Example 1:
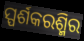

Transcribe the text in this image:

ସ୍ପର୍ଶକରଶ୍ମିର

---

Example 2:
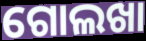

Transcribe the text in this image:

ଗୋଲଖା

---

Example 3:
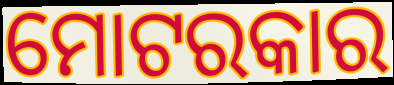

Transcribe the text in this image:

ମୋଟରକାର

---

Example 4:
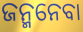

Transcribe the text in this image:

ଜନ୍ମନେବା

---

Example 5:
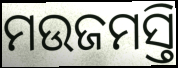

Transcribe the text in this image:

ମଉଜମସ୍ତି